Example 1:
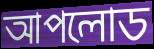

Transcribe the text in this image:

আপলোড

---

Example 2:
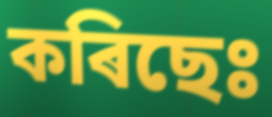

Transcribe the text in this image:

কৰিছেঃ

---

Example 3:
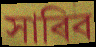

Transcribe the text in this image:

সাৰিব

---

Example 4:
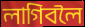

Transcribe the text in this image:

লাগিবলৈ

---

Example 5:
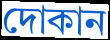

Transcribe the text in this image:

দোকান